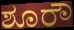
ಶೂರೌ